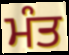
ਮੰਤ